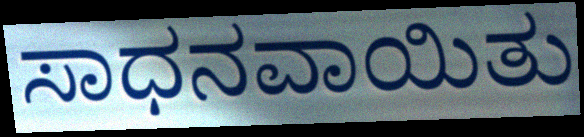
ಸಾಧನವಾಯಿತು